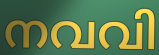
നവവി